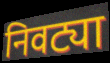
निवट्या